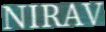
NIRAV